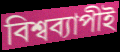
বিশ্বব্যাপীই